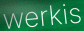
werkis